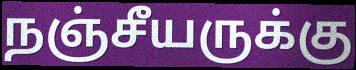
நஞ்சீயருக்கு